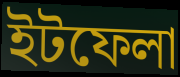
ইটফেলা